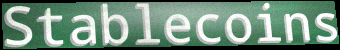
Stablecoins